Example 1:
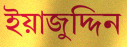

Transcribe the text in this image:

ইয়াজুদ্দিন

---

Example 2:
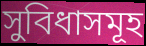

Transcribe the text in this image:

সুবিধাসমূহ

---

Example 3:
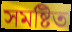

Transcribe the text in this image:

সমষ্টিত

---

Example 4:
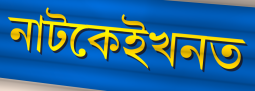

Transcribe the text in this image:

নাটকেইখনত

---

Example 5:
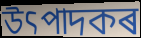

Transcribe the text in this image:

উৎপাদকৰ